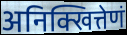
अनिक्खित्तेणं